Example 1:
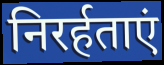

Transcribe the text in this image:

निरर्हताएं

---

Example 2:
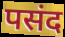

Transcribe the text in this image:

पसंद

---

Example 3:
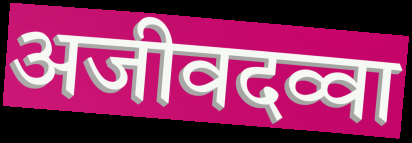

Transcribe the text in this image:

अजीवदव्वा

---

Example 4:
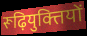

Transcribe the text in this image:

रूढ़ियुक्तियों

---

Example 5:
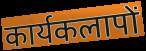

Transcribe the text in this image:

कार्यकलापों